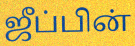
ஜீப்பின்